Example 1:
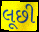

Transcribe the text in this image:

લૂછી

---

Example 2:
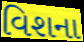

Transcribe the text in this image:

વિશના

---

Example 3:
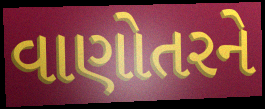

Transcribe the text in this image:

વાણોતરને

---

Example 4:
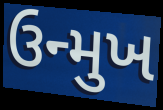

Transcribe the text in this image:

ઉન્મુખ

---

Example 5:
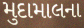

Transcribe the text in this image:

મુદામાલના